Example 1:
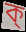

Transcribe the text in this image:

ক্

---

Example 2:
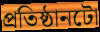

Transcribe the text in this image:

প্ৰতিষ্ঠানটো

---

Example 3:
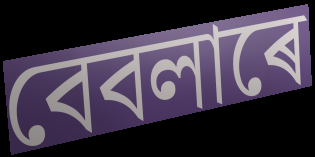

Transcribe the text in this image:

বেবলাৰে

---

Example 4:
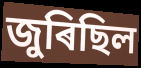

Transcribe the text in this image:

জুৰিছিল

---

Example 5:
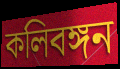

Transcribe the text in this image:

কলিবঙ্গন